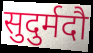
सुदुर्मदौ